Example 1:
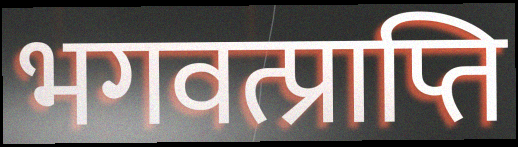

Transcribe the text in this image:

भगवत्प्राप्ति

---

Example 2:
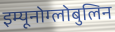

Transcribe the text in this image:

इम्यूनोग्लोबुलिन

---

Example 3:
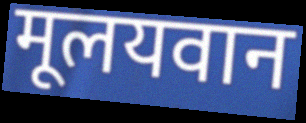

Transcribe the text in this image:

मूलयवान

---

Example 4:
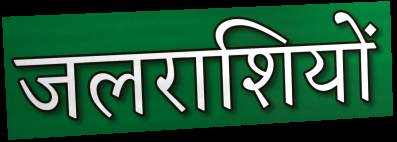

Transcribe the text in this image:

जलराशियों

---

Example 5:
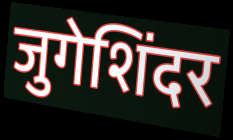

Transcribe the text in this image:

जुगेशिंदर